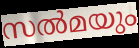
സൽമയും